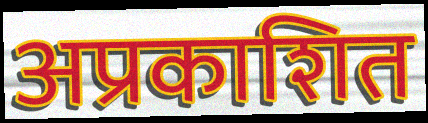
अप्रकाशित